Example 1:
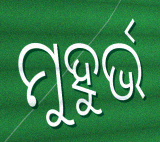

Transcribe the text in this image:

ମୁହୁର୍ଭ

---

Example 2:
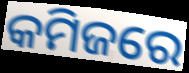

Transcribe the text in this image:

କମିଜରେ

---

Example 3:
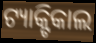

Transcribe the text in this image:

ଟ୍ୟାକ୍ଟିକାଲ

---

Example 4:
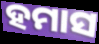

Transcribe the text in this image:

ହମାସ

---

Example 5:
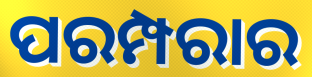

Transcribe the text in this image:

ପରମ୍ପରାର